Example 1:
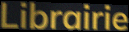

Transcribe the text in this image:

Librairie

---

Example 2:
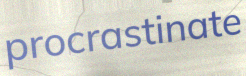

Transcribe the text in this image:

procrastinate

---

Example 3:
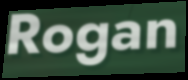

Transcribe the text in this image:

Rogan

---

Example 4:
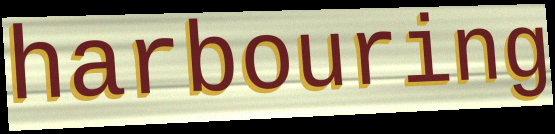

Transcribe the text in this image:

harbouring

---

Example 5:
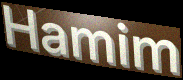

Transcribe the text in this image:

Hamim